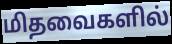
மிதவைகளில்